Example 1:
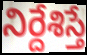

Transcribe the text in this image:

నిర్దేశిస్తే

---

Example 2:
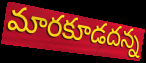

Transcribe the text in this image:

మారకూడదన్న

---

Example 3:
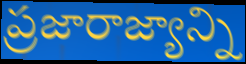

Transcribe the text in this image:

ప్రజారాజ్యాన్ని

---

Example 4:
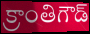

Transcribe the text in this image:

క్రాంతిగౌడ్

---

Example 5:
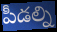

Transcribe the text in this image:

పీడల్ని